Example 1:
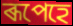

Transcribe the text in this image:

ৰূপেহে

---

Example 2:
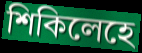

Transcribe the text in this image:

শিকিলেহে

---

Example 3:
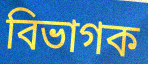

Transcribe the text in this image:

বিভাগক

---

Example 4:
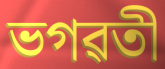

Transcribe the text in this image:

ভগৱতী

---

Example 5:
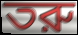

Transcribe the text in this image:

তৰু